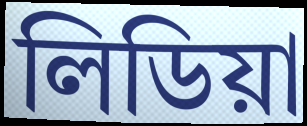
লিডিয়া